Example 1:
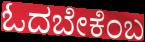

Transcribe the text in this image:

ಓದಬೇಕೆಂಬ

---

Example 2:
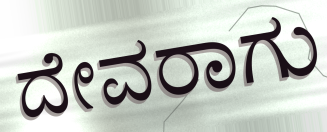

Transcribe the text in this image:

ದೇವರಾಗು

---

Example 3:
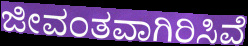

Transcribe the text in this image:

ಜೀವಂತವಾಗಿರಿಸಿವೆ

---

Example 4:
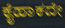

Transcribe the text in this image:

ಕೈಹಾಕದೇ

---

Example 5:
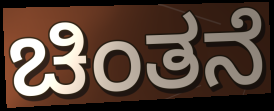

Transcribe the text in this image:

ಚಿಂತನೆ